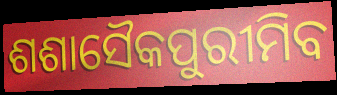
ଶଶାସୈକପୁରୀମିବ